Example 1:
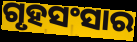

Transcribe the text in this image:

ଗୃହସଂସାର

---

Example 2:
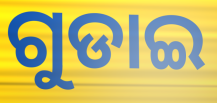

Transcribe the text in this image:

ଗୁଡାଇ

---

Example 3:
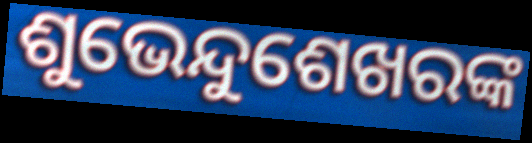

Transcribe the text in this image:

ଶୁଭେନ୍ଦୁଶେଖରଙ୍କ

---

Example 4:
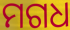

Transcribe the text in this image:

ମଗଧ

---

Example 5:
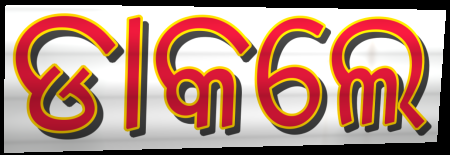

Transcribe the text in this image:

ଡାକଲେ